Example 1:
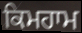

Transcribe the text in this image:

ਕਿਮਹਾਮ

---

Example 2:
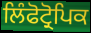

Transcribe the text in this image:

ਲਿੰਫੋਟ੍ਰੋਪਿਕ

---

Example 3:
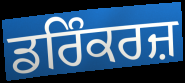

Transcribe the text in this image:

ਡਰਿੰਕਰਜ਼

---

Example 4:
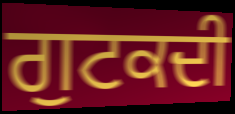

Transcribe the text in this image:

ਗੁਟਕਦੀ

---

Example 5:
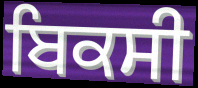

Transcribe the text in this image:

ਬਿਕਸੀ